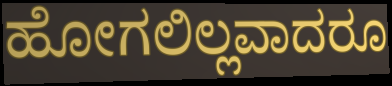
ಹೋಗಲಿಲ್ಲವಾದರೂ